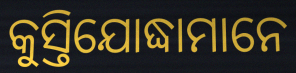
କୁସ୍ତିଯୋଦ୍ଧାମାନେ